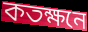
কতক্ষনে